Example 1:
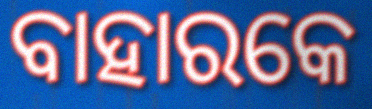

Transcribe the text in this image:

ବାହାରକେ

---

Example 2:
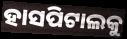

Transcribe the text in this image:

ହାସପିଟାଲକୁ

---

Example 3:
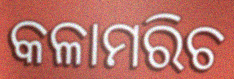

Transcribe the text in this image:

କଳାମରିଚ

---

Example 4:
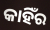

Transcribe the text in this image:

କାହିଁର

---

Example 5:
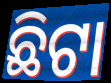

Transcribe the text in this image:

ଛିଟା